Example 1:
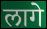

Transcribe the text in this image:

लागे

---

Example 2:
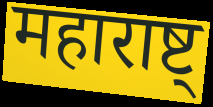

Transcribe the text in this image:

महाराष्ट्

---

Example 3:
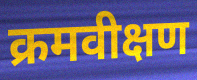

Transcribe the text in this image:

क्रमवीक्षण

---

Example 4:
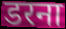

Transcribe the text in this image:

डरना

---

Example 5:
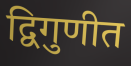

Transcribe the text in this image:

द्विगुणीत